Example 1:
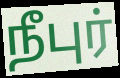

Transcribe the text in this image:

நீபுர்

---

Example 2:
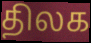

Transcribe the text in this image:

திலக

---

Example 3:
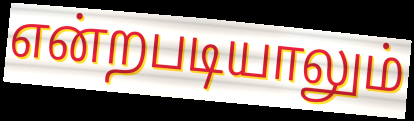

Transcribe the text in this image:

என்றபடியாலும்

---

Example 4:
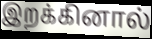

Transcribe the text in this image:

இறக்கினால்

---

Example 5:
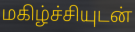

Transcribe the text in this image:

மகிழ்ச்சியுடன்